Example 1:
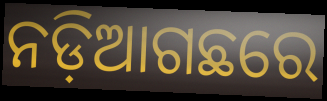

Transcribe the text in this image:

ନଡ଼ିଆଗଛରେ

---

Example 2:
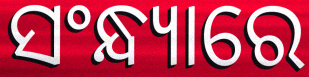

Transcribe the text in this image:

ସଂନ୍ଧ୍ୟାରେ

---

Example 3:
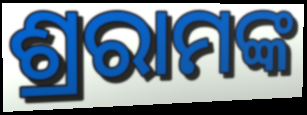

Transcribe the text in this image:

ଶ୍ରରାମଙ୍କ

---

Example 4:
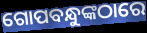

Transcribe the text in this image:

ଗୋପବନ୍ଧୁଙ୍କଠାରେ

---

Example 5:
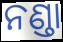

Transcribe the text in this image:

ନଣ୍ଡା